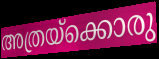
അത്രയ്ക്കൊരു